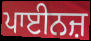
ਪਾਈਨਜ਼